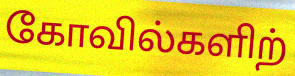
கோவில்களிற்